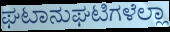
ಘಟಾನುಘಟಿಗಳೆಲ್ಲಾ